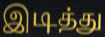
இடித்து